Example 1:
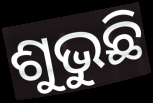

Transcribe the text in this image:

ଶୁଭୁଛି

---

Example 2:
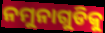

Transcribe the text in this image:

ନମୁନାଗୁଡିକୁ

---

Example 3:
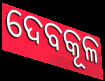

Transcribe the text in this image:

ଦେବକୂଳ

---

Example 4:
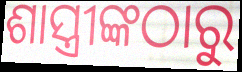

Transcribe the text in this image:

ଶାସ୍ତ୍ରୀଙ୍କଠାରୁ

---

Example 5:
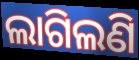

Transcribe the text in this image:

ଲାଗିଲଣି